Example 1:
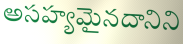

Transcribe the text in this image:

అసహ్యమైనదానిని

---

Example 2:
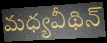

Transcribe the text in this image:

మధ్యవీథిన్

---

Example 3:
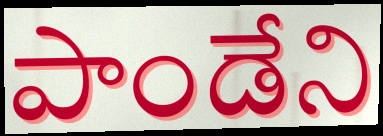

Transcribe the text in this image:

పాండేని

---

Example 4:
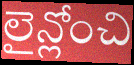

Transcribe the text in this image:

లైన్లోంచి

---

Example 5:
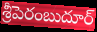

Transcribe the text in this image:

శ్రీపెరంబుదూర్